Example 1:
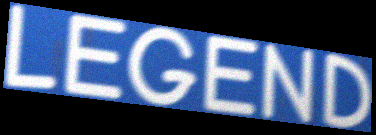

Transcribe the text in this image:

LEGEND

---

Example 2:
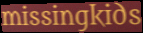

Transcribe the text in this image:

missingkids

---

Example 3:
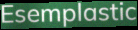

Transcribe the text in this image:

Esemplastic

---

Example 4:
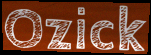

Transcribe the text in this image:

Ozick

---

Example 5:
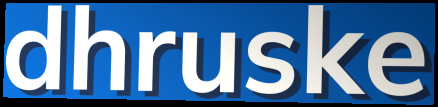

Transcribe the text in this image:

dhruske